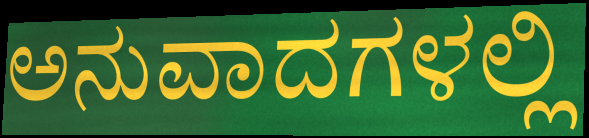
ಅನುವಾದಗಳಲ್ಲಿ